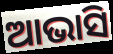
ଆଭାସି